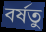
বর্ষতু